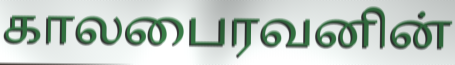
காலபைரவனின்